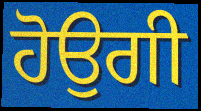
ਹੋਉਗੀ